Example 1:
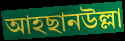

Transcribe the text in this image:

আহছানউল্লা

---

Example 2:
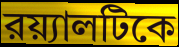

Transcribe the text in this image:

রয়্যালটিকে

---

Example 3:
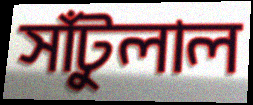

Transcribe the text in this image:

সাঁটুলাল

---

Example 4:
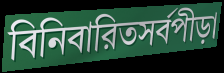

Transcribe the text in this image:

বিনিবারিতসর্বপীড়া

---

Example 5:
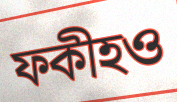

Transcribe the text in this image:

ফকীহও